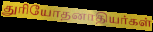
துரியோதனாதியர்கள்